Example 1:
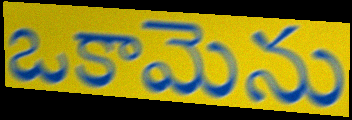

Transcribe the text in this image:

ఒకామెను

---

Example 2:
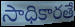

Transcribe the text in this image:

సాధికారతే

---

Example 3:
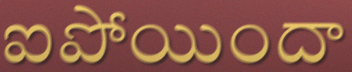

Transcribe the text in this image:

ఐపోయిందా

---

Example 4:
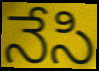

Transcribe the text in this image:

నేసి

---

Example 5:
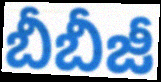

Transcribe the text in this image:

బీబీజీ